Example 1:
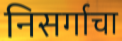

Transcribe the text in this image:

निसर्गाचा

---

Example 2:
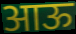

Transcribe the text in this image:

आऊ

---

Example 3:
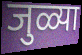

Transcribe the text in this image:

जुळ्या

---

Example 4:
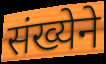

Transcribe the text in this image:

संख्येने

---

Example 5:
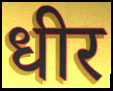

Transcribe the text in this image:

धीर